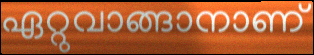
ഏറ്റുവാങ്ങാനാണ്